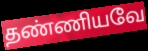
தண்ணியவே